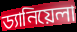
ড্যানিয়েলা